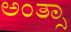
ಅಂತ್ಸಾ